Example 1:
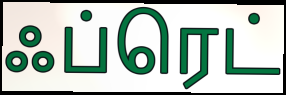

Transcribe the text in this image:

ஃப்ரெட்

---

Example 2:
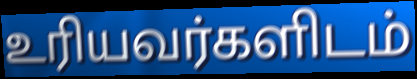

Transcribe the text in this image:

உரியவர்களிடம்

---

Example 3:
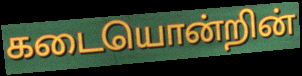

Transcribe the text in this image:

கடையொன்றின்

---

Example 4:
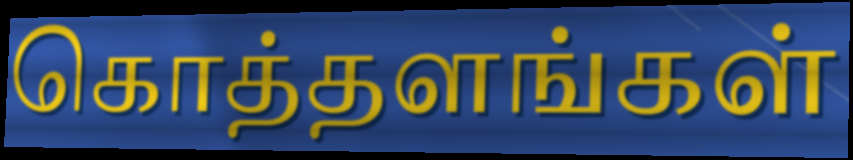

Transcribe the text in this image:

கொத்தளங்கள்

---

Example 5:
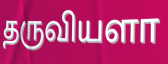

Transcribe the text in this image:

தருவியளா